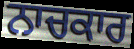
ਨਾਚਕਾਰ